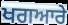
ਖਗਆਰੇ